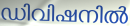
ഡിവിഷനിൽ